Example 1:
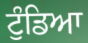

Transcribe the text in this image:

ਟੁੰਡਿਆ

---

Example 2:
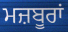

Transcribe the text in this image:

ਮਜ਼ਬੂਰਾਂ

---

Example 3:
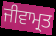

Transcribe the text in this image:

ਜੀਵਾਮ੍ਰਤ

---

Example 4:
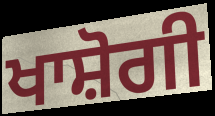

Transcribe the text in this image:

ਖਾਸ਼ੋਗੀ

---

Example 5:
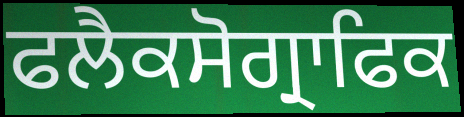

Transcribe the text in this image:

ਫਲੈਕਸੋਗ੍ਰਾਫਿਕ